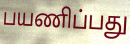
பயணிப்பது